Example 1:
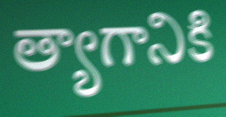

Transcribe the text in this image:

త్యాగానికి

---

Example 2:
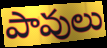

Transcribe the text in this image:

పావులు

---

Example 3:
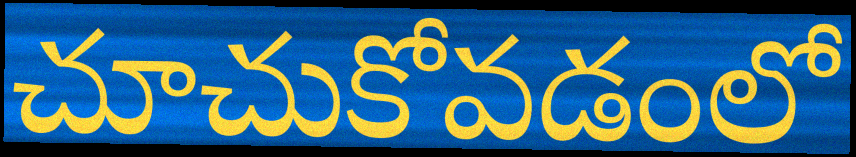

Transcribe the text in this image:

చూచుకోవడంలో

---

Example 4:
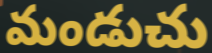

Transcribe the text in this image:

మండుచు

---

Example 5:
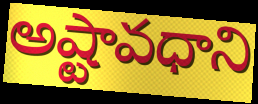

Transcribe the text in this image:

అష్టావధాని